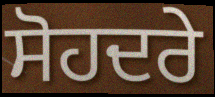
ਸੋਹਦਰੇ